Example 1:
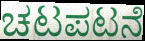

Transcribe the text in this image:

ಚಟಪಟನೆ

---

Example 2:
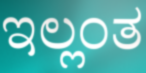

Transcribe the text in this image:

ಇಲ್ಲಂತ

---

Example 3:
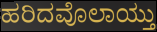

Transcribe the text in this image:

ಹರಿದವೊಲಾಯ್ತು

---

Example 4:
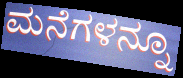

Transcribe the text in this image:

ಮನೆಗಳನ್ನೂ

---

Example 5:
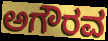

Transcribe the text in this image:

ಅಗೌರವ